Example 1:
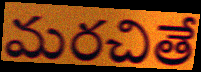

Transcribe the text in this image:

మరచితే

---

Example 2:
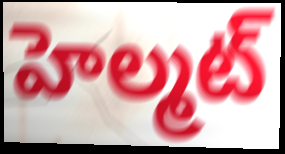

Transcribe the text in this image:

హెల్మట్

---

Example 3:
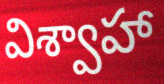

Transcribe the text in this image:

విశ్వాహా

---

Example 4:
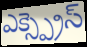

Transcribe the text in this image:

ఎక్స్ప్రెస్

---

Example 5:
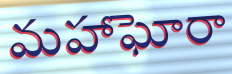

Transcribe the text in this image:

మహాఘోరా